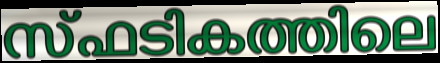
സ്ഫടികത്തിലെ